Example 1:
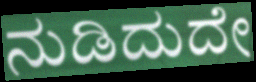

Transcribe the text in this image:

ನುಡಿದುದೇ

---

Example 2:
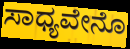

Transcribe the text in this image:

ಸಾಧ್ಯವೇನೊ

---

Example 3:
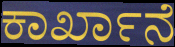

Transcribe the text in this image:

ಕಾರ್ಖಾನೆ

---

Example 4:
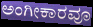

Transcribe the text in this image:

ಅಂಗೀಕಾರವೂ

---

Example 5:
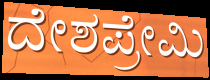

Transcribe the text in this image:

ದೇಶಪ್ರೇಮಿ